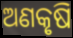
ଅଣକୃଷି